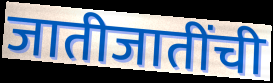
जातीजातींची